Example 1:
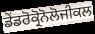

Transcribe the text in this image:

ਡੇਂਡਰੋਕ੍ਰੋਨੋਲੋਜੀਕਲ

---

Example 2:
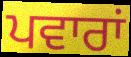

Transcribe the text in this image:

ਪਵਾਰਾਂ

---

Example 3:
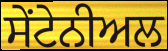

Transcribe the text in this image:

ਸੇਂਟੇਨੀਅਲ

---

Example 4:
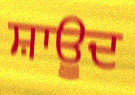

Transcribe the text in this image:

ਸ਼ਾਊਦ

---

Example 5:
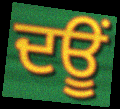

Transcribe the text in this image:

ਦਊਂ